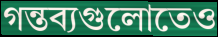
গন্তব্যগুলোতেও